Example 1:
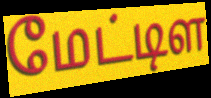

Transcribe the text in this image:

மேட்டிள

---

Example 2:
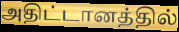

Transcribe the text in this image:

அதிட்டானத்தில்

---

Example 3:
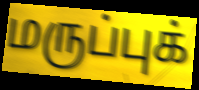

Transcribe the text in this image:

மருப்புக்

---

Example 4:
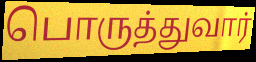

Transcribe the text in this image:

பொருத்துவார்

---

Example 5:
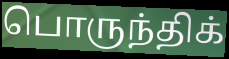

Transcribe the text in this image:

பொருந்திக்